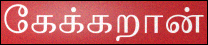
கேக்கறான்